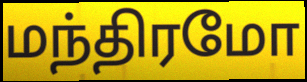
மந்திரமோ